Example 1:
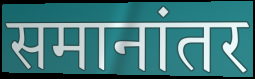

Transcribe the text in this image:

समानांतर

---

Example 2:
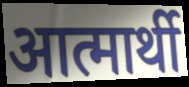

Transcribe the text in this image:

आत्मार्थी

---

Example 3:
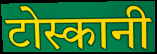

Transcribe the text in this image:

टोस्कानी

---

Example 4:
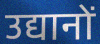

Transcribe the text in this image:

उद्यानों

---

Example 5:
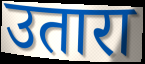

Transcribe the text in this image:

उतारा